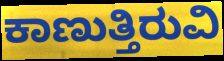
ಕಾಣುತ್ತಿರುವಿ